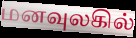
மனவுலகில்